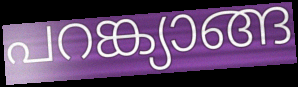
പറങ്ക്യാങ്ങ